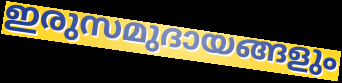
ഇരുസമുദായങ്ങളും